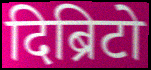
दिब्रिटो